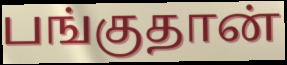
பங்குதான்